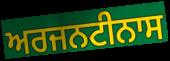
ਅਰਜਨਟੀਨਾਸ